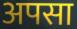
अपसा